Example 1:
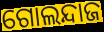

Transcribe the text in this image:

ଗୋଲନ୍ଦାଜ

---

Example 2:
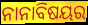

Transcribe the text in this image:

ନାନାବିଷୟର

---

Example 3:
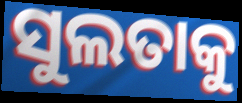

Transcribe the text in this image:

ସୁଲତାକୁ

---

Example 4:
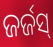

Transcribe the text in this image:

ଜର୍ଜସ୍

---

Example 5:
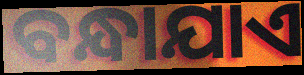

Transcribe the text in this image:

ବନ୍ଧାଯାଏ